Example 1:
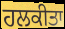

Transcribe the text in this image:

ਹਲਕੀਤਾ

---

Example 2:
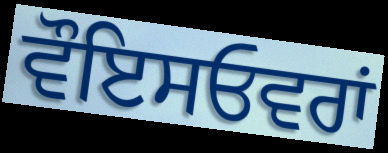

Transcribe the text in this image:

ਵੌਇਸਓਵਰਾਂ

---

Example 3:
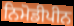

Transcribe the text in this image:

ਨਿਮੋਡੀਪੀਨ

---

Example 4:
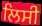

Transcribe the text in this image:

ਲਿਸੀ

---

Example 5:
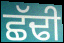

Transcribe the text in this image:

ਛੱਢੀ